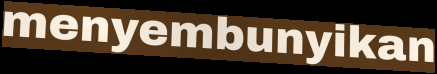
menyembunyikan